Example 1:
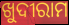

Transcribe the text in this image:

ଖୁଦୀରାମ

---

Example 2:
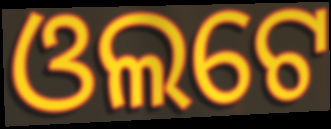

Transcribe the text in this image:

ଓଲଟେ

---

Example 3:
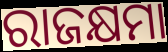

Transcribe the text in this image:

ରାଜକ୍ଷମା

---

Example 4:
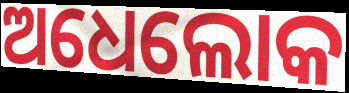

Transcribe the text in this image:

ଅଧେଲୋକ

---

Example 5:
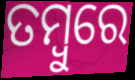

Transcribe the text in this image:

ତମ୍ବୁରେ